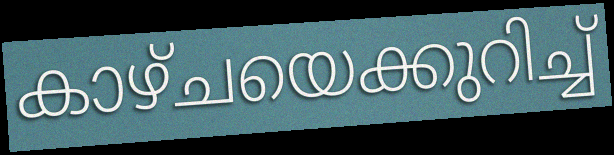
കാഴ്ചയെക്കുറിച്ച്